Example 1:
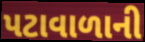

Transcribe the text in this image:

પટાવાળાની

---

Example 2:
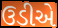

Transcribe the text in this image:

ઉડીએ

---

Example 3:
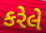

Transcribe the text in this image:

કરેલે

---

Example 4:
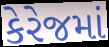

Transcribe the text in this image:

કેરેજમાં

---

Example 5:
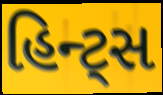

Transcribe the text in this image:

હિન્ટ્સ